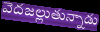
వెదజల్లుతున్నాడు